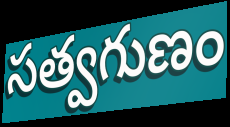
సత్వగుణం